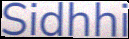
Sidhhi